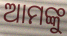
ଆମଙ୍କୁ